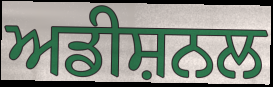
ਅਡੀਸ਼ਨਲ